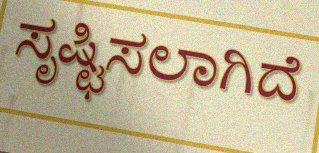
ಸೃಷ್ಟಿಸಲಾಗಿದೆ